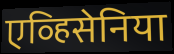
एव्हिसेनिया